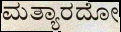
ಮತ್ಯಾರದೋ